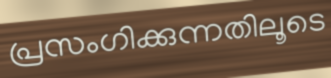
പ്രസംഗിക്കുന്നതിലൂടെ